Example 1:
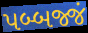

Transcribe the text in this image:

પબ્બજ્જં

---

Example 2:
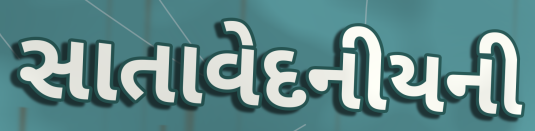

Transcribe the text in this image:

સાતાવેદનીયની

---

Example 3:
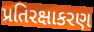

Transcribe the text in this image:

પ્રતિરક્ષાકરણ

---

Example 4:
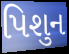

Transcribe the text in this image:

પિશુન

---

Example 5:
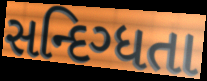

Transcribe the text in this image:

સન્દિગ્ધતા